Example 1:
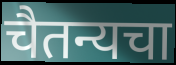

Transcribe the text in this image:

चैतन्यचा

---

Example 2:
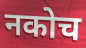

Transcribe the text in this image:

नकोच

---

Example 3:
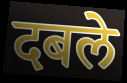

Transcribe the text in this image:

दबले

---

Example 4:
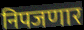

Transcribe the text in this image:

निपजणार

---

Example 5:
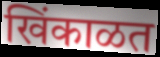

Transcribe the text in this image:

खिंकाळत